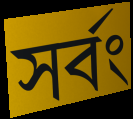
সর্বং